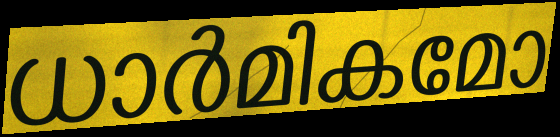
ധാർമികമോ